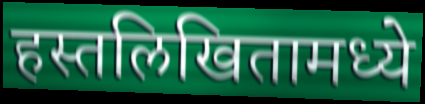
हस्तलिखितामध्ये